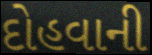
દોહવાની